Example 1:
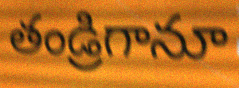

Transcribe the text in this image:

తండ్రిగానూ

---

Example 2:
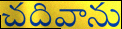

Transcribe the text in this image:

చదివాను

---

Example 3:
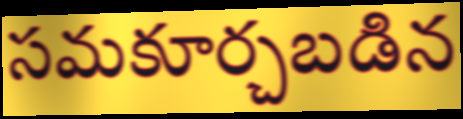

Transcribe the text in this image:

సమకూర్చబడిన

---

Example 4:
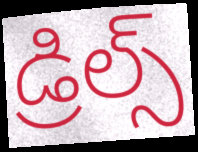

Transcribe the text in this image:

డ్రిల్స్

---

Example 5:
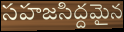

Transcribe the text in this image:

సహజసిద్దమైన